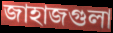
জাহাজগুলা